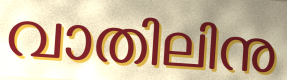
വാതിലിനു